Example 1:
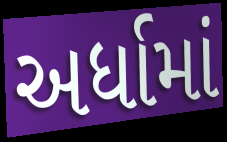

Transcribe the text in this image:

અર્ધામાં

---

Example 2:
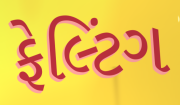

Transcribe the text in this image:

ફેલ્ટિંગ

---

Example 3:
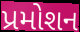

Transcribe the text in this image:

પ્રમોશન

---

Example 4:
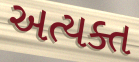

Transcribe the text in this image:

અત્યક્ત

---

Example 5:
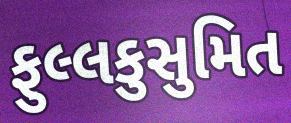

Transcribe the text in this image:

ફુલ્લકુસુમિત